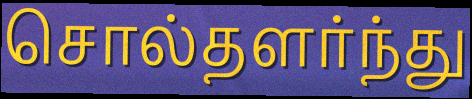
சொல்தளர்ந்து